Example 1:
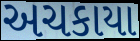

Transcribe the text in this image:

અચકાયા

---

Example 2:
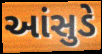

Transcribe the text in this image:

આંસુડે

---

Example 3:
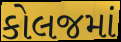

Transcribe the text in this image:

કોલજમાં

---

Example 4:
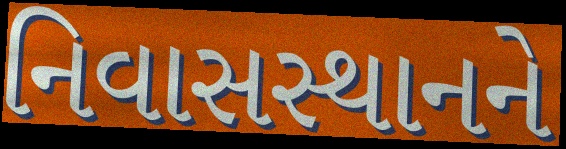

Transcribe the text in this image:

નિવાસસ્થાનને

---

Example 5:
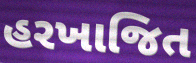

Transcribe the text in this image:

હરખાજિત